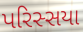
પરિસ્સયા